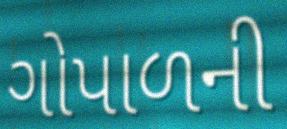
ગોપાળની